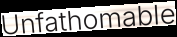
Unfathomable